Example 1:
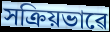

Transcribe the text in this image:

সক্ৰিয়ভাৱে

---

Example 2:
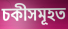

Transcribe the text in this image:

চকীসমূহত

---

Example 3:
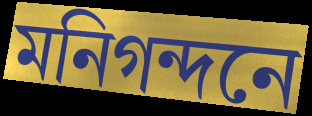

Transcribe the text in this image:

মনিগন্দনে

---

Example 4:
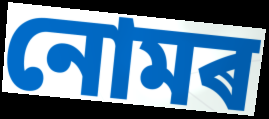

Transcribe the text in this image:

নোমৰ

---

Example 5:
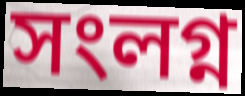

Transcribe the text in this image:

সংলগ্ন